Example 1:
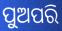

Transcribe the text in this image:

ପୁଅପରି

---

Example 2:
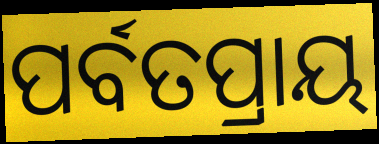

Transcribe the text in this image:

ପର୍ବତପ୍ରାୟ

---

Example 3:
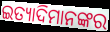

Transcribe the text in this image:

ଇତ୍ୟାଦିମାନଙ୍କର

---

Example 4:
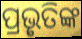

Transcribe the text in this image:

ପ୍ରଭୃତିଙ୍କ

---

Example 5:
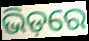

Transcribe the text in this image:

ଭିଡ଼ରେ